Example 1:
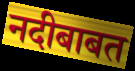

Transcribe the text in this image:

नदीबाबत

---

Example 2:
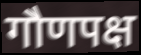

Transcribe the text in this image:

गौणपक्ष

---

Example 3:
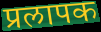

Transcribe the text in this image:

प्रलापक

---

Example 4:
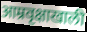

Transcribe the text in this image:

आम्रवृक्षाखाली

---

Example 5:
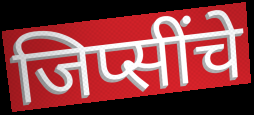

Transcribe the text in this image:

जिप्सींचे